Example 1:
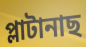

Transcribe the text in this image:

প্লাটানাছ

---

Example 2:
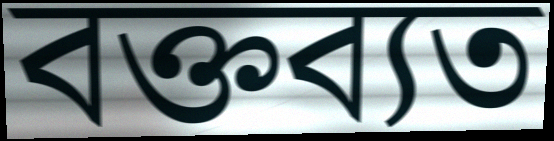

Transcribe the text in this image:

বক্তব্যত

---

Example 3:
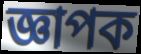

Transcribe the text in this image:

জ্ঞাপক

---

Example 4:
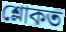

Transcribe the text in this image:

শ্লোকত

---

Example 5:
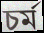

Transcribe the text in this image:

চৰ্ম